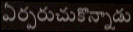
ఏర్పరుచుకొన్నాడు